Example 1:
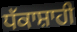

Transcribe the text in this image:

ਧੱਕਾਸ਼ਾਹੀ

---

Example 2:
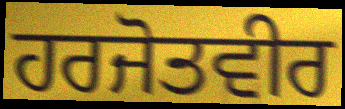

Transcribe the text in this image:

ਹਰਜੋਤਵੀਰ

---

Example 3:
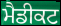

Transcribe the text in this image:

ਮੈਡੀਕਟ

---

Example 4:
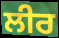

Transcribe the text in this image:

ਲੀਰ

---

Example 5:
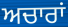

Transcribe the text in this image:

ਅਚਾਰਾਂ